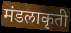
मंडलाकृती